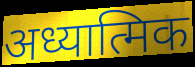
अध्यात्मिक